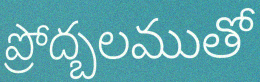
ప్రోద్బలముతో